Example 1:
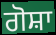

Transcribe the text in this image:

ਗੋਸ਼ਾ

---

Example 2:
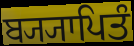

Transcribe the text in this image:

ਬ੍ਯ੍ਯਾਪਿਤੰ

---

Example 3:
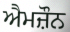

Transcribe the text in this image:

ਐਮਜ਼ੌਨ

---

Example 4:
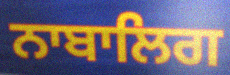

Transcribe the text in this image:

ਨਾਬਾਲਿਗ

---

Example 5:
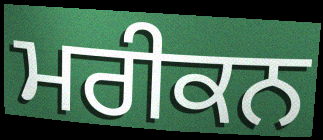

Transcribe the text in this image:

ਮਰੀਕਨ